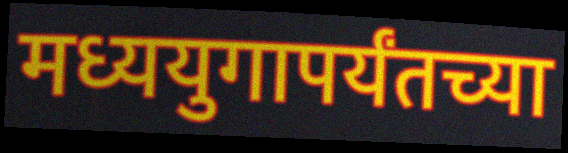
मध्ययुगापर्यंतच्या